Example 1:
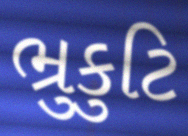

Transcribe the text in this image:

ભ્રુકુટિ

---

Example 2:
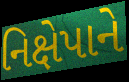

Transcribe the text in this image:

નિક્ષેપાને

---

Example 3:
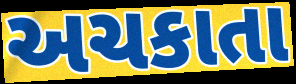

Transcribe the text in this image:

અચકાતા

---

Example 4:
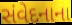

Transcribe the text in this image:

સંવેદનાના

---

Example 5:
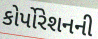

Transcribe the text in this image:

કોર્પોરેશનની